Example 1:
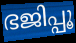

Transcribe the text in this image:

ഭജിപ്പൂ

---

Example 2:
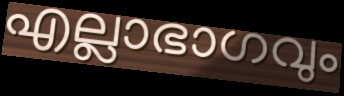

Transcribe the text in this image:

എല്ലാഭാഗവും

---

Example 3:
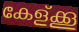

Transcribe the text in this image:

കേള്ക്കൂ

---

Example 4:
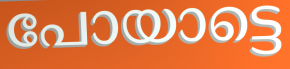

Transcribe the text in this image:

പോയാട്ടെ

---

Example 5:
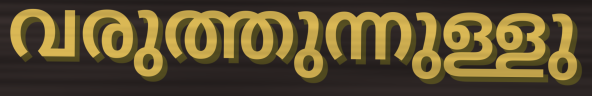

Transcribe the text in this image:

വരുത്തുന്നുള്ളു